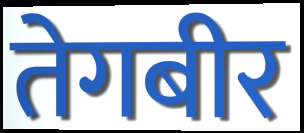
तेगबीर